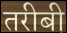
तरीबी